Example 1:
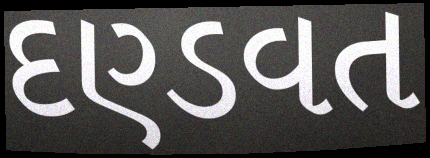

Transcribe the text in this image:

દણ્ડવત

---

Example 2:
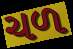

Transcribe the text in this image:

ચળ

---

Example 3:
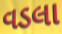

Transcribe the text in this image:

વડલા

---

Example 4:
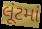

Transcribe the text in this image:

લૂંટમાં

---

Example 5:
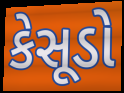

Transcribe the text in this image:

કેસૂડો